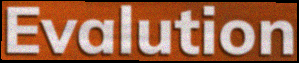
Evalution